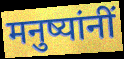
मनुष्यांनीं